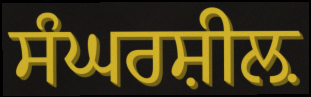
ਸੰਘਰਸ਼ੀਲ਼